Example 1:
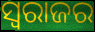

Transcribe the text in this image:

ସ୍ବରାଜର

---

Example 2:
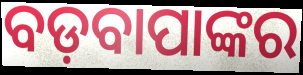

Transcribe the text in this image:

ବଡ଼ବାପାଙ୍କର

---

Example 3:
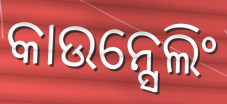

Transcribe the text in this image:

କାଉନ୍ସେଲିଂ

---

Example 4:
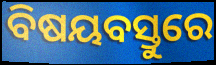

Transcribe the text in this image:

ବିଷୟବସ୍ତୁରେ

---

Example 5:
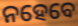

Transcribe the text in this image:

ନହେବେ